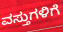
ವಸ್ತುಗಳಿಗೆ